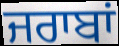
ਜਰਾਬਾਂ